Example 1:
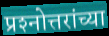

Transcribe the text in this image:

प्रश्नोत्तरांच्या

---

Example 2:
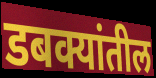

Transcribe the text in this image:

डबक्यांतील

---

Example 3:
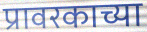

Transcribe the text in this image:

प्रावरकाच्या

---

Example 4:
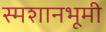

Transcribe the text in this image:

स्मशानभूमी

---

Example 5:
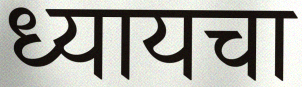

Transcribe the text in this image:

ध्यायचा